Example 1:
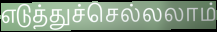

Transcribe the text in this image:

எடுத்துச்செல்லலாம்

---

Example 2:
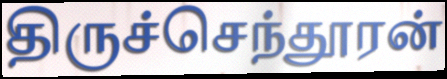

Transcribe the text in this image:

திருச்செந்தூரன்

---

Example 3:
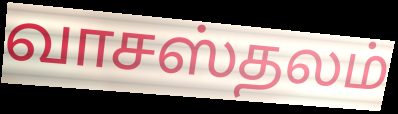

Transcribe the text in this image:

வாசஸ்தலம்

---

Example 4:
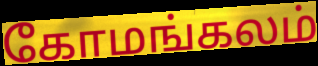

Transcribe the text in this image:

கோமங்கலம்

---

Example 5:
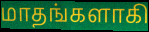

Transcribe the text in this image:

மாதங்களாகி